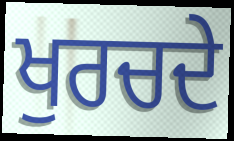
ਖੁਰਚਦੇ